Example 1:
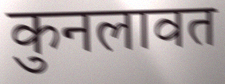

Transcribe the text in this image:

कुनलावत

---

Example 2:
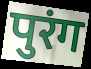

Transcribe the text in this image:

पुरंग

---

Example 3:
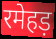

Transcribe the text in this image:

रमेहड़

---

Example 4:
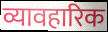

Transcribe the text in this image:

व्यावहारिक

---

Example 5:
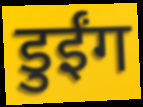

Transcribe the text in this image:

डुईंग